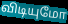
விடியுமோ